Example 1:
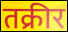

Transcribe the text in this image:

तक्रीर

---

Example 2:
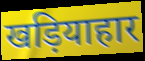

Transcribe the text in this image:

खड़ियाहार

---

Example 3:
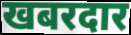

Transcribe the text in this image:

खबरदार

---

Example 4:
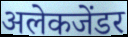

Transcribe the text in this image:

अलेकजेंडर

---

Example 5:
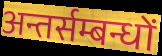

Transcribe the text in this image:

अन्तर्सम्बन्धों